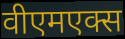
वीएमएक्स